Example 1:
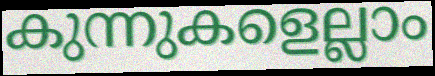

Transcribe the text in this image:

കുന്നുകളെല്ലാം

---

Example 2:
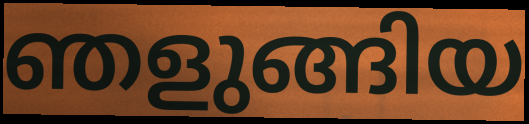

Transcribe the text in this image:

ഞളുങ്ങിയ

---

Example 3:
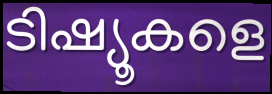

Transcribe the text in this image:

ടിഷ്യൂകളെ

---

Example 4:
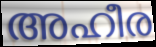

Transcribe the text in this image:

അഹീര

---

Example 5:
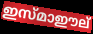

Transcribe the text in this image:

ഇസ്മാഈല്